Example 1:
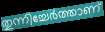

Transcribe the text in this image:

തുന്നിച്ചേർത്താണ്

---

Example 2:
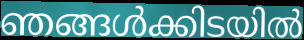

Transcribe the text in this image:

ഞങ്ങൾക്കിടയിൽ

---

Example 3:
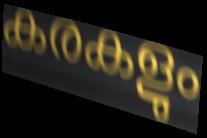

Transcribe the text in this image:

കരകളും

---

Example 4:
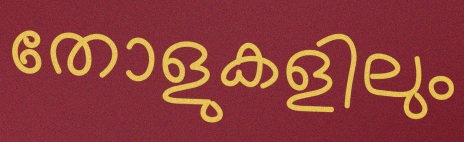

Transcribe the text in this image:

തോളുകളിലും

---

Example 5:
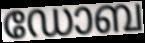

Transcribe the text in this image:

ഡോബ